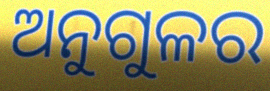
ଅନୁଗୁଳର